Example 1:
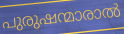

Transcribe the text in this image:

പുരുഷന്മാരാൽ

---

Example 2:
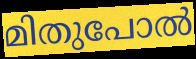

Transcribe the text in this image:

മിതുപോൽ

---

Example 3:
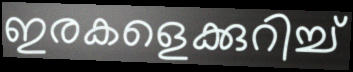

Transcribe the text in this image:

ഇരകളെക്കുറിച്ച്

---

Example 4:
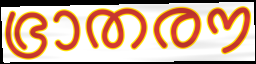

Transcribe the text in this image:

ഭ്രാതരൗ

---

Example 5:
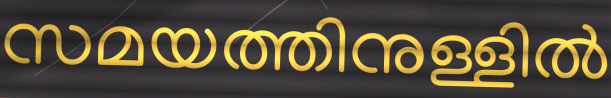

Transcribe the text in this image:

സമയത്തിനുള്ളിൽ